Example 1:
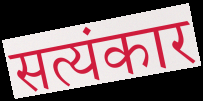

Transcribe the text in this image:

सत्यंकार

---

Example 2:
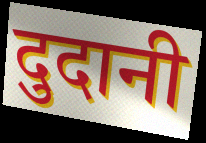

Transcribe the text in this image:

दुदानी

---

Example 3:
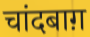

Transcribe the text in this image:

चांदबाग़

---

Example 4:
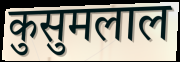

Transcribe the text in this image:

कुसुमलाल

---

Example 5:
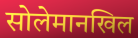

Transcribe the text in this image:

सोलेमानखिल